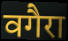
वगैरा